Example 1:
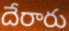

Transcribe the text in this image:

దేరారు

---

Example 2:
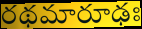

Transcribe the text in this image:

రథమారూఢః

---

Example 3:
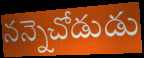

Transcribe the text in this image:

నన్నెచోడుడు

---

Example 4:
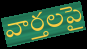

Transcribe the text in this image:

వార్తలపై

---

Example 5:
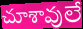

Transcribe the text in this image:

చూశావులే